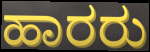
ಹಾರರು